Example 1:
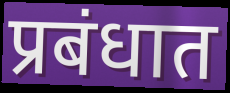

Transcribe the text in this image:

प्रबंधात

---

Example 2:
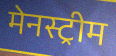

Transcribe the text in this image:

मेनस्ट्रीम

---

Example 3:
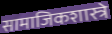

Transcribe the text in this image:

सामाजिकशास्त्रे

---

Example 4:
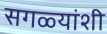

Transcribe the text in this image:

सगळ्यांशी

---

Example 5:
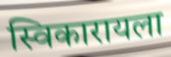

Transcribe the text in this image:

स्विकारायला